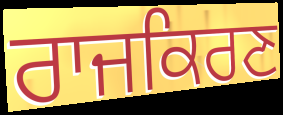
ਰਾਜਕਿਰਣ